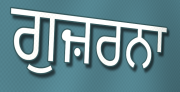
ਗੁਜ਼ਰਨਾ